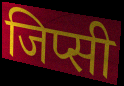
जिप्सी